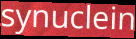
synuclein